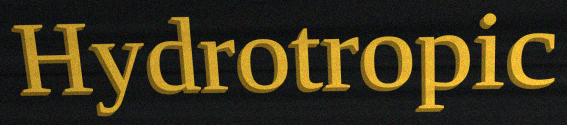
Hydrotropic